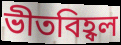
ভীতবিহ্বল